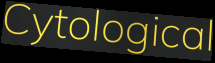
Cytological